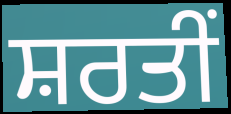
ਸ਼ਰਤੀਂ